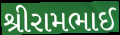
શ્રીરામભાઈ